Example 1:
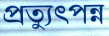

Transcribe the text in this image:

প্রত্যুৎপন্ন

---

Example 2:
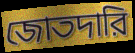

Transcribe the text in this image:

জোতদারি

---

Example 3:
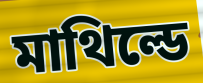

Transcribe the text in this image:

মাথিল্ডে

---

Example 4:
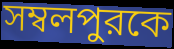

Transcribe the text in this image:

সম্বলপুরকে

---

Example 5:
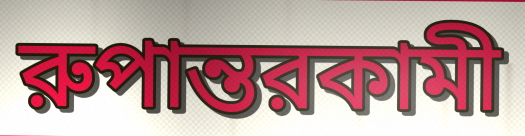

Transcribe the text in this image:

রুপান্তরকামী